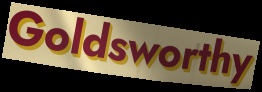
Goldsworthy